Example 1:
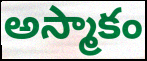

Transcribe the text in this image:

అస్మాకం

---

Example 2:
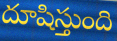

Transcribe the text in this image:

దూషిస్తుంది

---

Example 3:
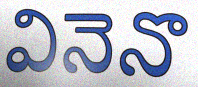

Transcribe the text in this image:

వినెనొ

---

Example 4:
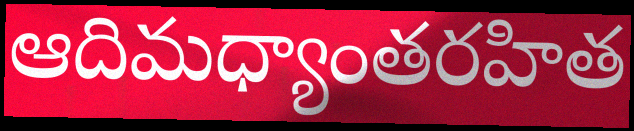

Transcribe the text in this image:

ఆదిమధ్యాంతరహిత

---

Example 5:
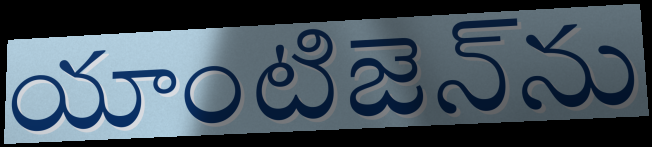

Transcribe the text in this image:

యాంటిజెన్‌ను